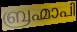
ബ്രഹ്മാപി